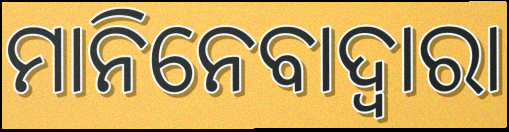
ମାନିନେବାଦ୍ୱାରା